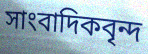
সাংবাদিকবৃন্দ